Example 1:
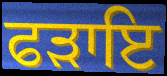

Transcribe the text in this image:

ਫੜਾਇ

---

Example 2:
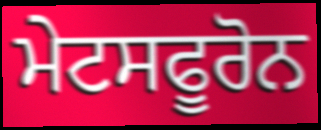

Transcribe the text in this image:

ਮੇਟਸਫੂਰੋਨ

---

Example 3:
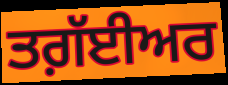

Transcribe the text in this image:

ਤਗ਼ੱਈਅਰ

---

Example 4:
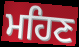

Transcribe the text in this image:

ਮਹਿਣ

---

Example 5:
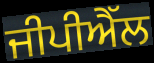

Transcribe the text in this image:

ਜੀਪੀਐੱਲ